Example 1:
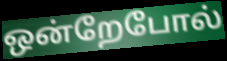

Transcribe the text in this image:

ஒன்றேபோல்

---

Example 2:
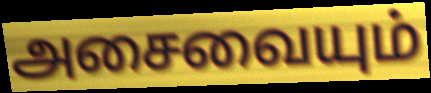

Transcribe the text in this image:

அசைவையும்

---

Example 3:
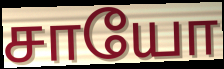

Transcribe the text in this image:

சாயோ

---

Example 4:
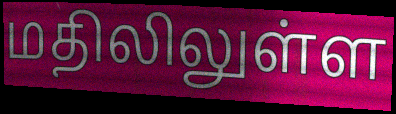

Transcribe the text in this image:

மதிலிலுள்ள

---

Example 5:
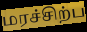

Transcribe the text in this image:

மரச்சிற்ப